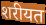
शरीयत